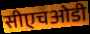
सीएचओडी